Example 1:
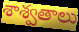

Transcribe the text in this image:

శాశ్వతాలు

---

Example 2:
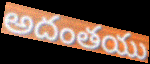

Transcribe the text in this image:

అదంతయు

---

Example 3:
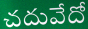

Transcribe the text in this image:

చదువేదో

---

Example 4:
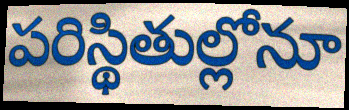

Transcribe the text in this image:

పరిస్థితుల్లోనూ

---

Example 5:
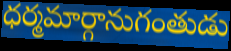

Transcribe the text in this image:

ధర్మమార్గానుగంతుడు